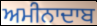
ਅਮੀਨਾਦਾਬ